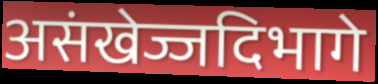
असंखेज्जदिभागे